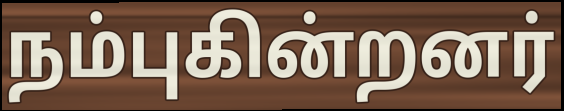
நம்புகின்றனர்